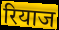
रियाज